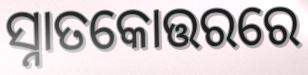
ସ୍ନାତକୋତ୍ତରରେ